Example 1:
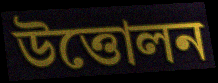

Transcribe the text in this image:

উত্তোলন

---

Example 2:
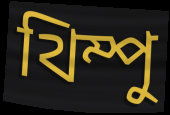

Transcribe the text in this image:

থিম্পু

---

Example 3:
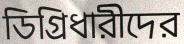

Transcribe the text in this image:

ডিগ্রিধারীদের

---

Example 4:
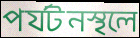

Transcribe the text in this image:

পর্যটনস্থলে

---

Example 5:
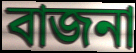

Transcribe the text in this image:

বাজনা